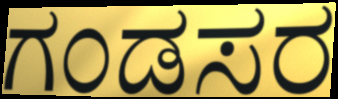
ಗಂಡಸರ